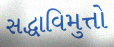
સદ્ધાવિમુત્તો